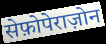
सेफ़ोपेराज़ोन